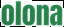
olona